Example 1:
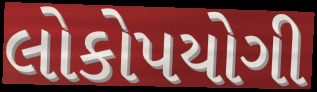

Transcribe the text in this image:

લોકોપયોગી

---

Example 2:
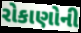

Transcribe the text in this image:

રોકાણોની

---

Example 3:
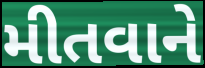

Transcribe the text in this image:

મીતવાને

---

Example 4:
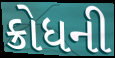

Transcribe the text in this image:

ક્રોધની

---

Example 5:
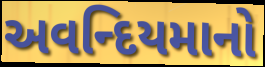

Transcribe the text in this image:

અવન્દિયમાનો